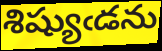
శిష్యుఁడను